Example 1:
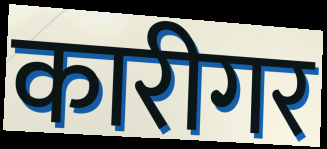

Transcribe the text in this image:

कारीगर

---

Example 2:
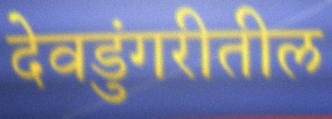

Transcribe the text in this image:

देवडुंगरीतील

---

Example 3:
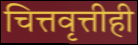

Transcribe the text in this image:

चित्तवृत्तीही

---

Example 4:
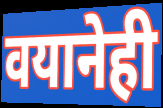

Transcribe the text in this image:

वयानेही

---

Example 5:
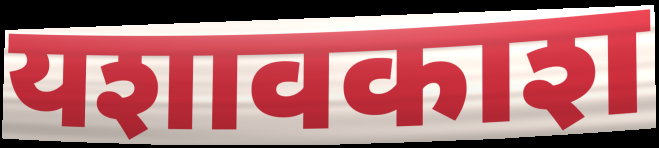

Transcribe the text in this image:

यशावकाश